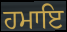
ਹਮਾਇ